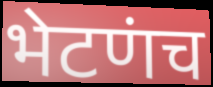
भेटणंच